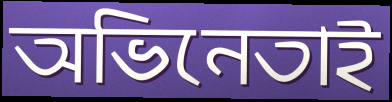
অভিনেতাই